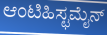
ಆಂಟಿಹಿಸ್ಟಮೈನ್